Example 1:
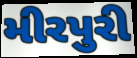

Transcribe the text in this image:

મીરપુરી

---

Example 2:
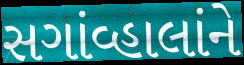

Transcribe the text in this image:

સગાંવ્હાલાંને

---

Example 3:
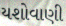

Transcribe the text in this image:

યશોવાણી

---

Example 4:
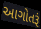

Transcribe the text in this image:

આગોતરૂં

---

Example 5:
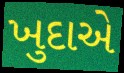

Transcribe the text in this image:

ખુદાએ